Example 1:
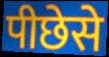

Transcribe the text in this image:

पीछेसे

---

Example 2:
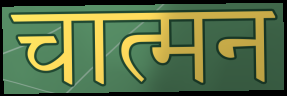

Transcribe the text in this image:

चात्मन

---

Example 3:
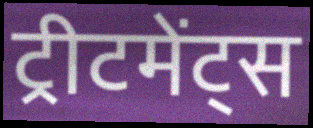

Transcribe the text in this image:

ट्रीटमेंट्स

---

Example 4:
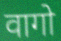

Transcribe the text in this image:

वागो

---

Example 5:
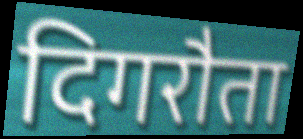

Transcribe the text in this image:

दिगरौता